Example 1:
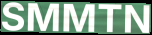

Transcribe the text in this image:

SMMTN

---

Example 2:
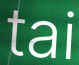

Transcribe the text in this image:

tai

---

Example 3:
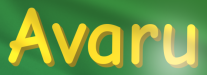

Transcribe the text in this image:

Avaru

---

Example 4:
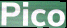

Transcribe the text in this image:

Pico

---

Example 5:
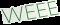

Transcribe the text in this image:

WEEE